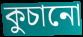
কুচানো